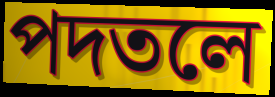
পদতলে